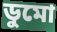
ডুমো